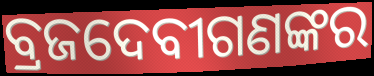
ବ୍ରଜଦେବୀଗଣଙ୍କର